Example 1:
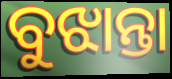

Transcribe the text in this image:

ବୁଝାନ୍ତା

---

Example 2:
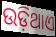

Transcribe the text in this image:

ଉଡ଼ିଥାଏ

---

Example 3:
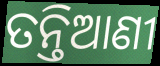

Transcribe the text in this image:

ତନ୍ତିଆଣୀ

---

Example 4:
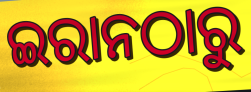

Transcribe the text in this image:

ଇରାନଠାରୁ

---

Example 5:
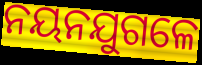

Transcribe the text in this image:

ନୟନଯୁଗଳେ